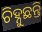
ଚିହ୍ନୁଛନ୍ତି